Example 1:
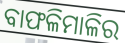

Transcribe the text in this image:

ବାଫଳିମାଳିର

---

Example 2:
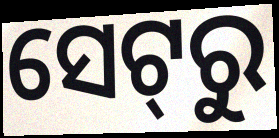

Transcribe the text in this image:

ସେଟ୍‌ରୁ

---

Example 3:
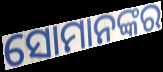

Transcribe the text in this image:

ସୋମାନଙ୍କର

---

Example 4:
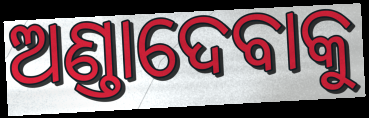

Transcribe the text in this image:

ଅଣ୍ଡାଦେବାକୁ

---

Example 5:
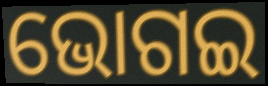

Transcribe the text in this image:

ଭୋଗଇ